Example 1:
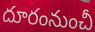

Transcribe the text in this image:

దూరంనుంచీ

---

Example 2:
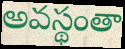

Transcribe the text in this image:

అవస్థంతా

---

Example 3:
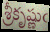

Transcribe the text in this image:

శ్రీకృష్ణుఁ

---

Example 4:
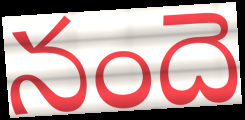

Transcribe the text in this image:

నందె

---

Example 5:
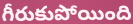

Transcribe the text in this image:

గీరుకుపోయింది